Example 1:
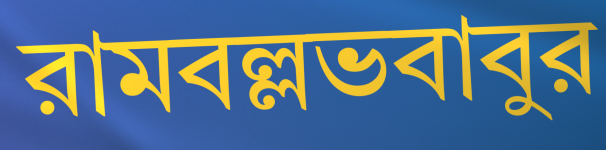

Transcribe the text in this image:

রামবল্লভবাবুর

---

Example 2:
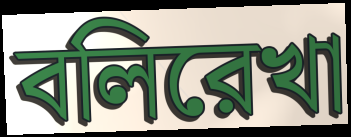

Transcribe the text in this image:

বলিরেখা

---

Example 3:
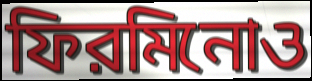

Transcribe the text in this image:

ফিরমিনোও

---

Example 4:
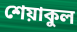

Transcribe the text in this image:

শেয়াকুল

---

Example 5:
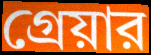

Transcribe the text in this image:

গ্রেয়ার